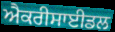
ਐਕਰੀਸਾਈਡਲ